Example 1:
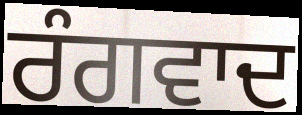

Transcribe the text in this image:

ਰੰਗਵਾਦ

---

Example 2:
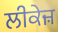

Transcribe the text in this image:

ਲੀਕੇਜ਼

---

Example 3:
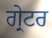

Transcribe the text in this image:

ਗ੍ਰੇਟਰ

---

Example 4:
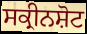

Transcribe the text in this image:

ਸਕ੍ਰੀਨਸ਼ੋਟ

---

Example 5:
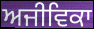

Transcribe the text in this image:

ਅਜੀਵਿਕਾ